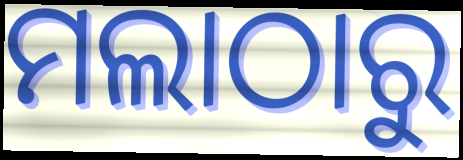
ମଲାଠାରୁ